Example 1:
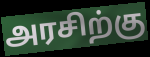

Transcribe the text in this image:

அரசிற்கு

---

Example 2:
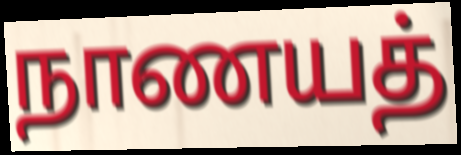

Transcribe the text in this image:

நாணயத்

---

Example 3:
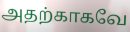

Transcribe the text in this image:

அதற்காகவே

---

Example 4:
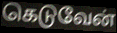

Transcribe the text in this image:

கெடுவேன்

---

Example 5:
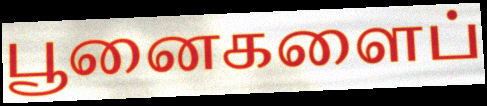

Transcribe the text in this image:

பூனைகளைப்